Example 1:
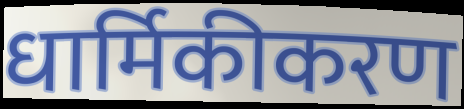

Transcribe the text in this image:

धार्मिकीकरण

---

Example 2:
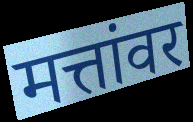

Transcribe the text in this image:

मत्तांवर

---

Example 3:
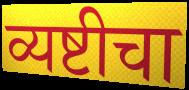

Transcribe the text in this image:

व्यष्टीचा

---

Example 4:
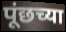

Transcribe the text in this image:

पूंछच्या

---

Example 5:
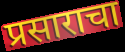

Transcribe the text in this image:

प्रसाराचा